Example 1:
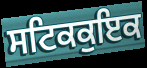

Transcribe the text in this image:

ਸਟਿਕਕੁਇਕ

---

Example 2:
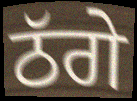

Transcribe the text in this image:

ਠੱਗੇ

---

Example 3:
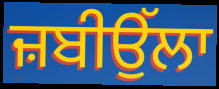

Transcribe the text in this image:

ਜ਼ਬੀਉੱਲਾ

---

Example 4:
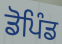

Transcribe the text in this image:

ਡੋਪਿੰਡ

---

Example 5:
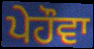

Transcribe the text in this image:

ਪੇਹੌਵਾ